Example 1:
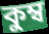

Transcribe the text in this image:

কুম্ব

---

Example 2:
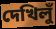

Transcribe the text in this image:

দেখিলুঁ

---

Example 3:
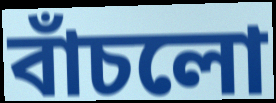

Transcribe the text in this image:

বাঁচলো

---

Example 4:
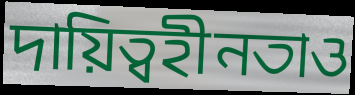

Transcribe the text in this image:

দায়িত্বহীনতাও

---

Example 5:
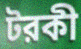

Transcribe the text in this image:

টরকী